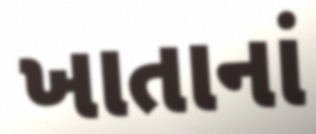
ખાતાનાં